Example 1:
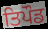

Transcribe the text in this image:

ਤਿਪੌਡ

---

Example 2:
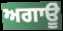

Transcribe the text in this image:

ਅਗਾਊੂਂ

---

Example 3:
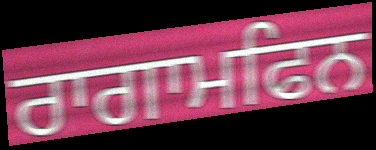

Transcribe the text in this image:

ਰਾਗਾਮਫਿਨ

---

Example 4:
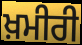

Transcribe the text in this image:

ਖ਼ਮੀਰੀ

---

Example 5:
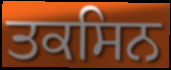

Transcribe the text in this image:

ਤਕਸਿਨ